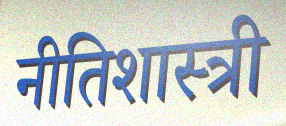
नीतिशास्त्री